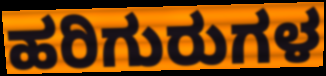
ಹರಿಗುರುಗಳ